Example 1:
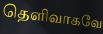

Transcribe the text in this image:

தெளிவாகவே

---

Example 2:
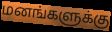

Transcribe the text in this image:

மனங்களுக்கு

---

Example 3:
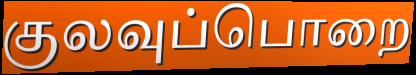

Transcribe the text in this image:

குலவுப்பொறை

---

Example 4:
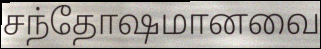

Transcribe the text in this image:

சந்தோஷமானவை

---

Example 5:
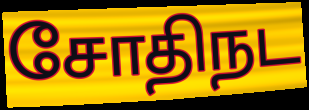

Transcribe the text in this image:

சோதிநட